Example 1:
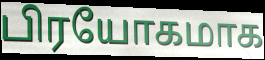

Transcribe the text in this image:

பிரயோகமாக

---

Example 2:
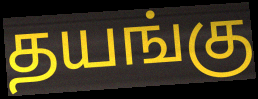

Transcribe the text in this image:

தயங்கு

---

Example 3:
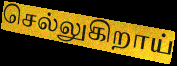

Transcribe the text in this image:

செல்லுகிறாய்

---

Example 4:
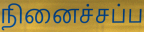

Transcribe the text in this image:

நினைச்சப்ப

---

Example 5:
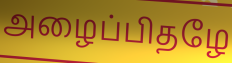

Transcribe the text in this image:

அழைப்பிதழே